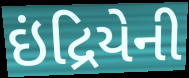
ઇંદ્રિયેની